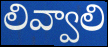
లివ్వాలి